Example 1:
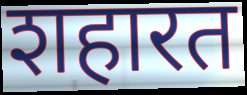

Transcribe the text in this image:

शहारत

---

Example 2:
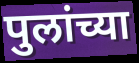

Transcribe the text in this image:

पुलांच्या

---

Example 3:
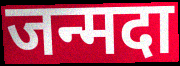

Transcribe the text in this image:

जन्मदा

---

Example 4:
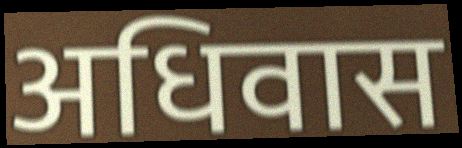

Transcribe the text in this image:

अधिवास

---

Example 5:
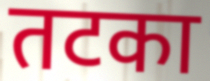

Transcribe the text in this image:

तटका